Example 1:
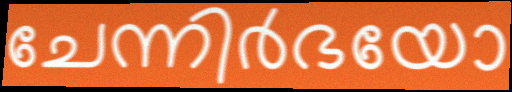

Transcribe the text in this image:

ചേന്നിർഭയോ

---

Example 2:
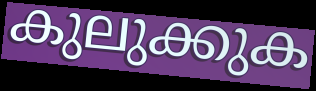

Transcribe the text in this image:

കുലുക്കുക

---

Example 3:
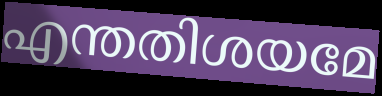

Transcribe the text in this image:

എന്തതിശയമേ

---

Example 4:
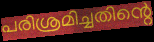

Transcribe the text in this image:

പരിശ്രമിച്ചതിന്റെ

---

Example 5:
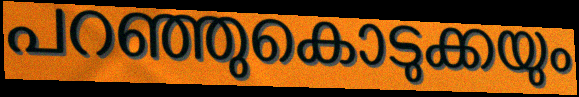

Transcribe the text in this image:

പറഞ്ഞുകൊടുക്കയും